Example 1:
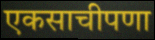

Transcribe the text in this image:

एकसाचीपणा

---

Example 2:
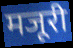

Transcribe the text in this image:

मजूरी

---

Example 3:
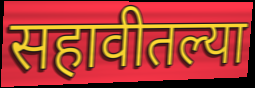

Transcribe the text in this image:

सहावीतल्या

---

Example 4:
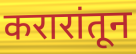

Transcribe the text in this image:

करारांतून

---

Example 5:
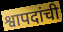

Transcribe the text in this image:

श्वापदांची